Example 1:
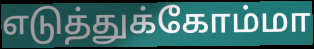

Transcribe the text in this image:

எடுத்துக்கோம்மா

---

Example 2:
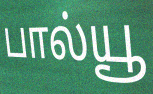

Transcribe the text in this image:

பால்யூ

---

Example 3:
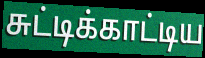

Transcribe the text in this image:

சுட்டிக்காட்டிய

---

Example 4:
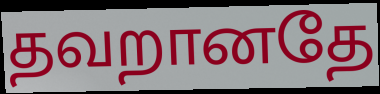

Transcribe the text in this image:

தவறானதே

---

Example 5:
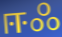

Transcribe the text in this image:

ஈஃ